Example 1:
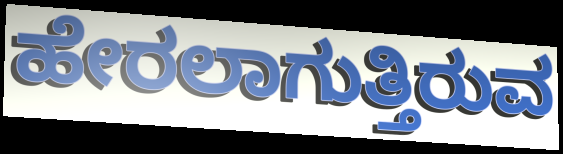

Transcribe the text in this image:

ಹೇರಲಾಗುತ್ತಿರುವ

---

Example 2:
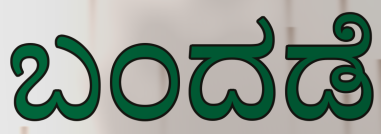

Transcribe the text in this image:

ಬಂದಡೆ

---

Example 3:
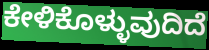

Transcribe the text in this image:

ಕೇಳಿಕೊಳ್ಳುವುದಿದೆ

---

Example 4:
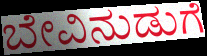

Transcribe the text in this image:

ಬೇವಿನುಡುಗೆ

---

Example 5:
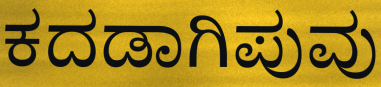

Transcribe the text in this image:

ಕದಡಾಗಿಪುವು